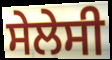
ਸੇਲੇਸੀ